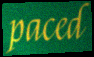
paced